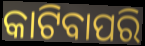
କାଟିବାପରି